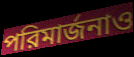
পরিমার্জনাও